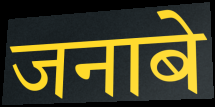
जनाबे